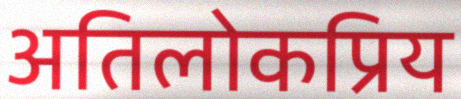
अतिलोकप्रिय